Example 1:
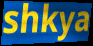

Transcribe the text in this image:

shkya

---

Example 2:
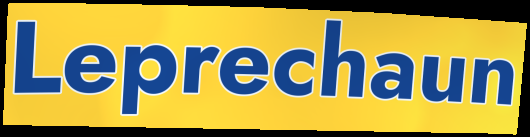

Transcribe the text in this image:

Leprechaun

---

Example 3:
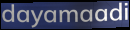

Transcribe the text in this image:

dayamaadi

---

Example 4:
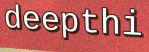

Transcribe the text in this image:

deepthi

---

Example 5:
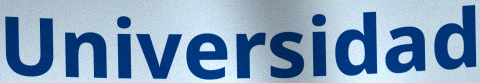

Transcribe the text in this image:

Universidad